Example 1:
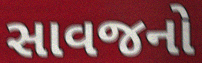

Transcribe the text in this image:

સાવજનો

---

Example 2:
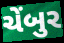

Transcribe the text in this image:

ચેંબુર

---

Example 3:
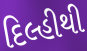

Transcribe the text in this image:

દિલ્હીથી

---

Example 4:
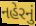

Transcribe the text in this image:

નહેરનું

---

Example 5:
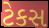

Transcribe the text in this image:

ટેકસ